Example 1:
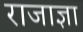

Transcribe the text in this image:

राजाज्ञा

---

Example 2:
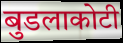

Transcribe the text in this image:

बुडलाकोटी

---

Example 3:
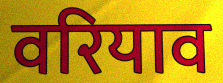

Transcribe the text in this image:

वरियाव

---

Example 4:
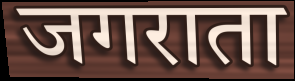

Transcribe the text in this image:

जगराता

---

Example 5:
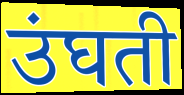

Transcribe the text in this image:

उंघती